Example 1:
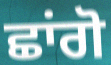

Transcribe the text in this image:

ਛਾਂਗੋ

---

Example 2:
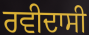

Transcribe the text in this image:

ਰਵੀਦਾਸੀ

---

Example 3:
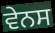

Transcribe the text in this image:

ਵੇਨਸ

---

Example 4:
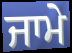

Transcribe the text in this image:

ਜਾਮੇ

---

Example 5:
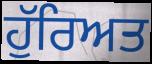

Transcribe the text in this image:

ਹੁੱਰਿਅਤ